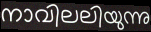
നാവിലലിയുന്നു